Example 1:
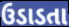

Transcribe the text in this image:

ઉડાડતા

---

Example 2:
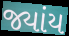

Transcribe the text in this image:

જ્યાંય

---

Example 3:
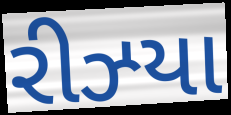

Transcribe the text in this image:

રીઝ્યા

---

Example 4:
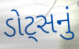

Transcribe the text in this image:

ડોટ્સનું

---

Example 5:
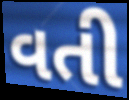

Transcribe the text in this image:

વતી